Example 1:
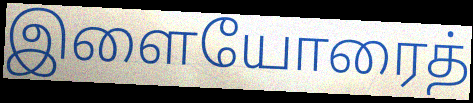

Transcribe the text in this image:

இளையோரைத்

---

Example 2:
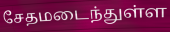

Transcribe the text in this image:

சேதமடைந்துள்ள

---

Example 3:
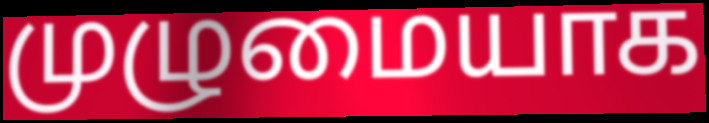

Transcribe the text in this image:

முழுமையாக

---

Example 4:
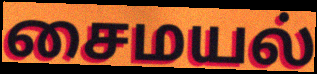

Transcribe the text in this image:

சைமயல்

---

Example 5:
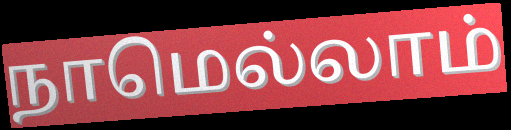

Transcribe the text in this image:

நாமெல்லாம்